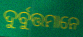
ଦୁର୍ବୁତ୍ତମାନେ